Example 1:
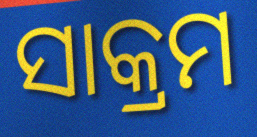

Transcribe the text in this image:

ସାକ୍ରମ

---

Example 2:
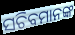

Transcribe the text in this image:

ସଚିବମାନଙ୍କ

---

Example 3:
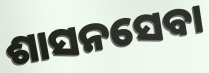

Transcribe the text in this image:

ଶାସନସେବା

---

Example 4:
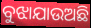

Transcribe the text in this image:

ବୁଝାଯାଉଅଛି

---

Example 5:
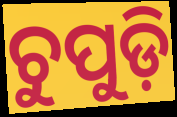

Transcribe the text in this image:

ଚୁପୁଡ଼ି